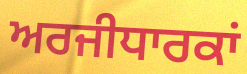
ਅਰਜੀਧਾਰਕਾਂ